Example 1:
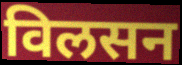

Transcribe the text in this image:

विलसन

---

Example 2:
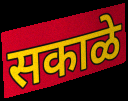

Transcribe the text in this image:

सकाळे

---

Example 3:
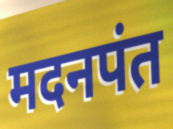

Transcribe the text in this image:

मदनपंत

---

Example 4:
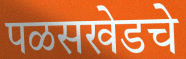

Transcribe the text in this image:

पळसखेडचे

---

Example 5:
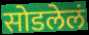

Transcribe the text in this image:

सोडलेलं